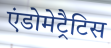
एंडोमेट्रैटिस